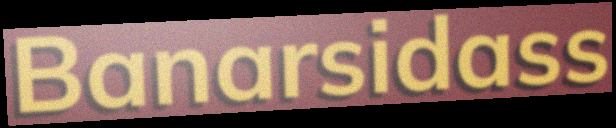
Banarsidass